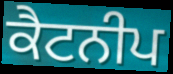
ਕੈਟਨੀਪ